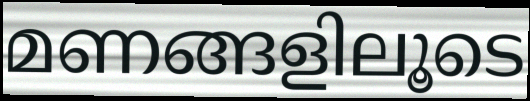
മണങ്ങളിലൂടെ